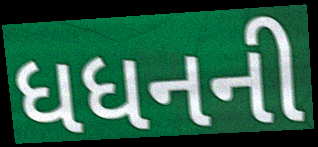
ધધનની